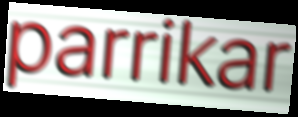
parrikar